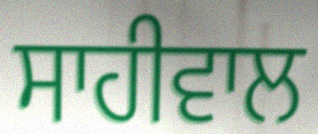
ਸਾਹੀਵਾਲ